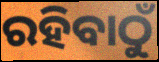
ରହିବାଠୁଁ